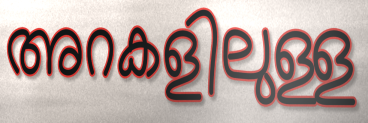
അറകളിലുള്ള